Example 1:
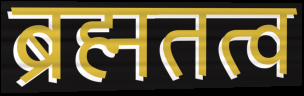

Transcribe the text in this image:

ब्रह्मतत्व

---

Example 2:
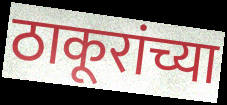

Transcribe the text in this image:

ठाकूरांच्या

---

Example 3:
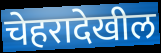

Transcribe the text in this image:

चेहरादेखील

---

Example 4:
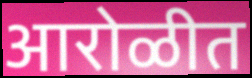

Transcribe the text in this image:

आरोळीत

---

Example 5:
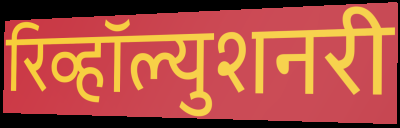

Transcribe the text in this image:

रिव्हॉल्युशनरी